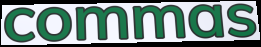
commas